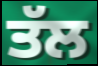
ਤੱਲ